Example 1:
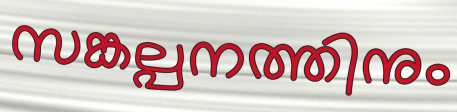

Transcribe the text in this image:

സങ്കല്പനത്തിനും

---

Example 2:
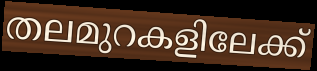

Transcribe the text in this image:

തലമുറകളിലേക്ക്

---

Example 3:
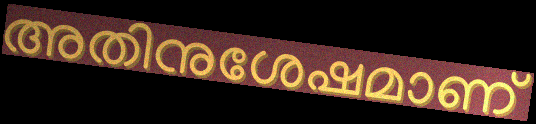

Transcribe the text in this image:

അതിനുശേഷമാണ്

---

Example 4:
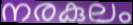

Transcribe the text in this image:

നരകുലം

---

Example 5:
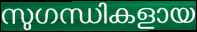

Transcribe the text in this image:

സുഗന്ധികളായ